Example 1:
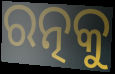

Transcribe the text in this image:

ରତ୍ନକୁ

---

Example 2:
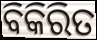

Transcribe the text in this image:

ବିକିରିତ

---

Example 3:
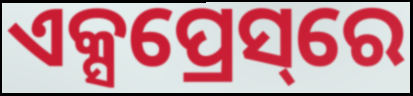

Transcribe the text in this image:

ଏକ୍ସପ୍ରେସ୍‌ରେ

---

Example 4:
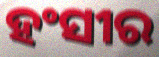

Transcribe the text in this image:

ହଂସୀର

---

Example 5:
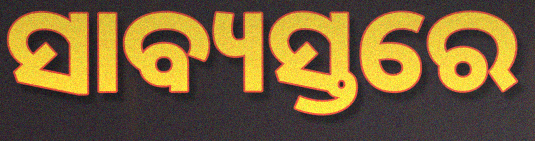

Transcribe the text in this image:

ସାବ୍ୟସ୍ତରେ